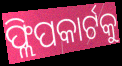
ଫ୍ଲିପକାର୍ଟକୁ